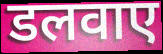
डलवाए